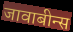
जावाबीन्स